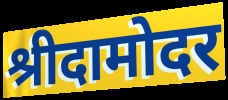
श्रीदामोदर